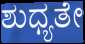
ಶುಧ್ಯತೇ